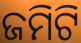
ଜମିଟି